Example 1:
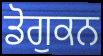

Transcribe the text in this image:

ਡੋਗੁਕਨ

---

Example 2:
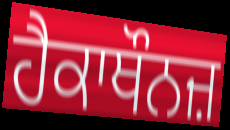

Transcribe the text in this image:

ਹੈਕਾਥੌਨਜ਼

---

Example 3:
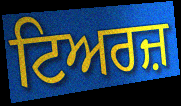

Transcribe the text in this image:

ਟਿਅਰਜ਼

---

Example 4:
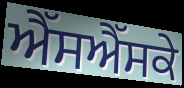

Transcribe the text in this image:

ਐੱਸਐੱਸਕੇ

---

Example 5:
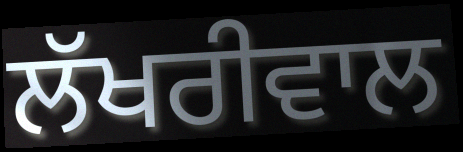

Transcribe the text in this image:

ਲੱਖਰੀਵਾਲ